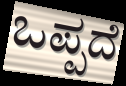
ಒಪ್ಪದೆ